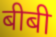
बीबी